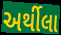
અર્થીલા